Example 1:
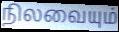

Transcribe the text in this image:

நிலவையும்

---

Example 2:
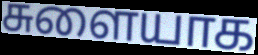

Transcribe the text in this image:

சுளையாக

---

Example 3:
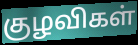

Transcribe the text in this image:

குழவிகள்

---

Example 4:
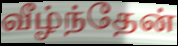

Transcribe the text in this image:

வீழ்ந்தேன்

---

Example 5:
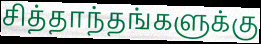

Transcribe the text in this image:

சித்தாந்தங்களுக்கு